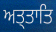
ਅਤ੍ਤਾਤਿ